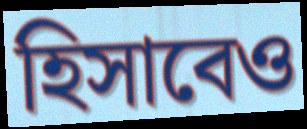
হিসাবেও